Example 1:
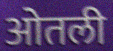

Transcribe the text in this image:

ओतली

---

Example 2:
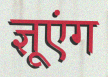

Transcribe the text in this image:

ज्ञूएंग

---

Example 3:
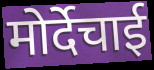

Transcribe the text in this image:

मोर्देचाई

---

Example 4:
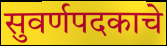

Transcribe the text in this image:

सुवर्णपदकाचे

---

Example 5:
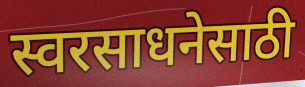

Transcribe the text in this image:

स्वरसाधनेसाठी